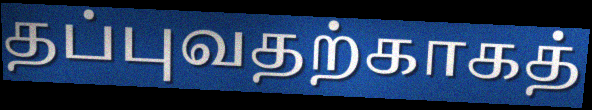
தப்புவதற்காகத்